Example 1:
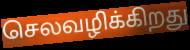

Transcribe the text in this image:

செலவழிக்கிறது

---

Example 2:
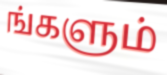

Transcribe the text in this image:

ங்களும்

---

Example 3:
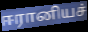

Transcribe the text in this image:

ஈரானியச்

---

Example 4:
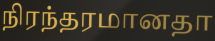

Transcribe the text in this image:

நிரந்தரமானதா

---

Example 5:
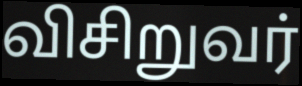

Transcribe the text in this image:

விசிறுவர்